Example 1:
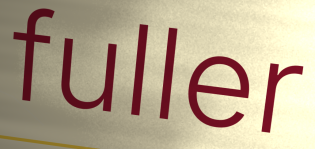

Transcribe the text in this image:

fuller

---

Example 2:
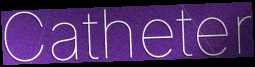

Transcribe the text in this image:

Catheter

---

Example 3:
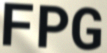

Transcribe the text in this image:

FPG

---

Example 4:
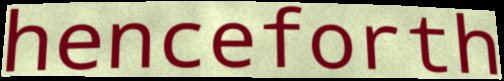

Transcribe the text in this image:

henceforth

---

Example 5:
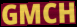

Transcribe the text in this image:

GMCH